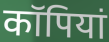
कॉपियां